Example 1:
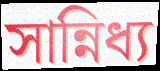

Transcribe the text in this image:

সান্নিধ্য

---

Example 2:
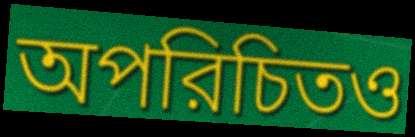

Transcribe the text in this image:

অপরিচিতও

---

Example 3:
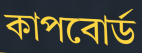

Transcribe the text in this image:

কাপবোর্ড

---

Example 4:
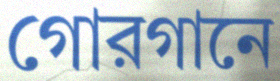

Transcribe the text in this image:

গোরগানে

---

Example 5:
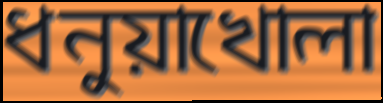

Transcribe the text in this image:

ধনুয়াখোলা